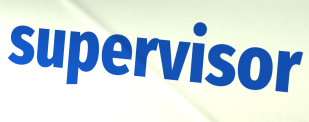
supervisor